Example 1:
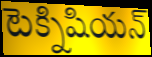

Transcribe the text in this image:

టెక్నిషియన్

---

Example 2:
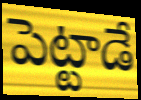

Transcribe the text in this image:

పెట్టాడే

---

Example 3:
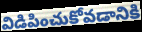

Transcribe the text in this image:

విడిపించుకోవడానికి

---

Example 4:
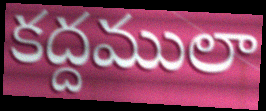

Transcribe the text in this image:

కద్దములా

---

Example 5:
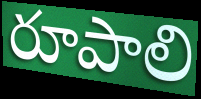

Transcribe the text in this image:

రూపాలి